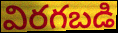
విరగబడి